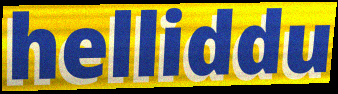
helliddu